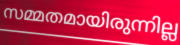
സമ്മതമായിരുന്നില്ല